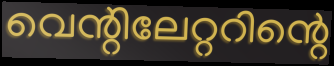
വെന്റിലേറ്ററിന്റെ